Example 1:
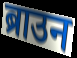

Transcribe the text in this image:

ब्राउन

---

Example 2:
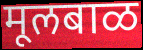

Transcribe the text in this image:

मूलबाळ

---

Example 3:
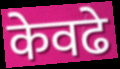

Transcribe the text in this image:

केवढे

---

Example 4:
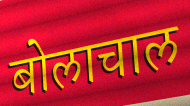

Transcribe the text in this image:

बोलाचाल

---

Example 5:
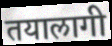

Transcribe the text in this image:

तयालागी